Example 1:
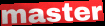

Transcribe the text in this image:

master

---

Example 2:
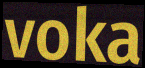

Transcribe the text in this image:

voka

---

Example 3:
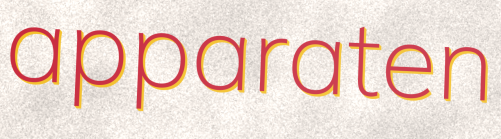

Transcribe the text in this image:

apparaten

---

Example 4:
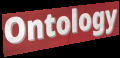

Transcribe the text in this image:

Ontology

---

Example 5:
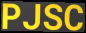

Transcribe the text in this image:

PJSC